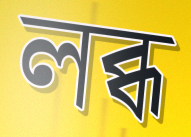
লব্ধ